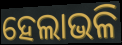
ହେଲାଭଳି